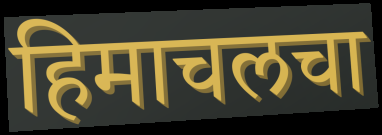
हिमाचलचा